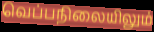
வெப்பநிலையிலும்